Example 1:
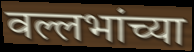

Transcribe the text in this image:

वल्लभांच्या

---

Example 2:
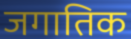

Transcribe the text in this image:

जगातिक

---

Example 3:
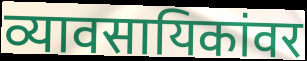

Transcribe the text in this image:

व्यावसायिकांवर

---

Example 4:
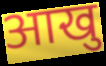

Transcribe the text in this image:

आखु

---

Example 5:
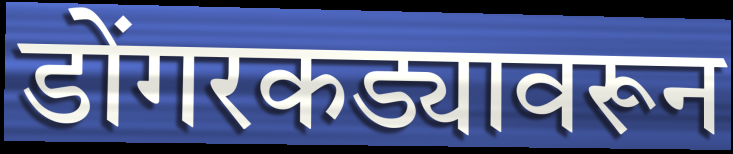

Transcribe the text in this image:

डोंगरकड्यावरून